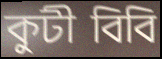
কুটীবিবি